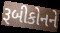
રૂબીકોનને